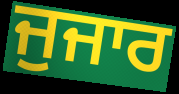
ਜੁਜਾਰ